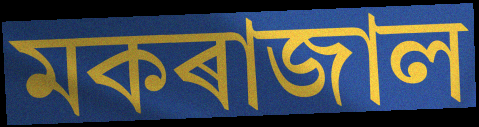
মকৰাজাল